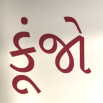
કૂંજો